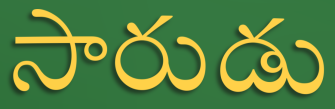
సారుడు